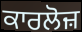
ਕਾਰਲੋਜ਼